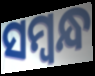
ସମ୍ୱନ୍ଧ